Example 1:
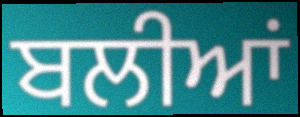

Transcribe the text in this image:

ਬਲੀਆਂ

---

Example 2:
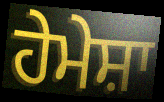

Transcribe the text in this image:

ਹੇਮੇਸ਼ਾ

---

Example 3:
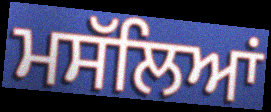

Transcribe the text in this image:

ਮਸੱਲਿਆਂ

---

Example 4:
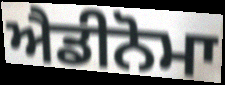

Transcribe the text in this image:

ਐਡੀਨੋਮਾ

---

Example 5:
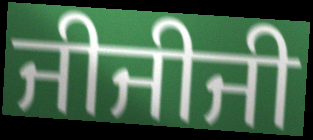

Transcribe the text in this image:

ਜੀਜੀਜੀ